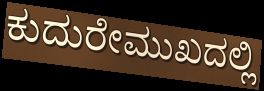
ಕುದುರೇಮುಖದಲ್ಲಿ